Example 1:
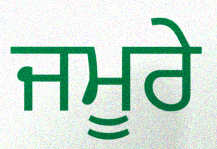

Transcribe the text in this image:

ਜਮੂਰੇ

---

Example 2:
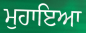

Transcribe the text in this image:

ਮੁਹਾਇਆ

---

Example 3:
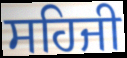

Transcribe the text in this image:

ਸਹਿਜੀ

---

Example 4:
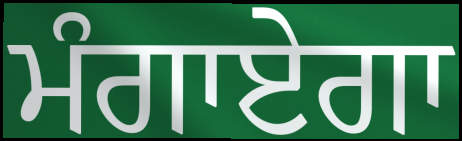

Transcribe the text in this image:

ਮੰਗਾਏਗਾ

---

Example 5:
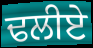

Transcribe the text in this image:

ਢਲੀਏ